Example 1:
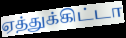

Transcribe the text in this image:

ஏத்துக்கிட்டா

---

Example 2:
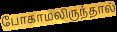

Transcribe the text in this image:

போகாமலிருந்தால்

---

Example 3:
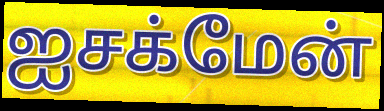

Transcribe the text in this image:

ஐசக்மேன்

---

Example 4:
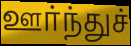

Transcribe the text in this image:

ஊர்ந்துச்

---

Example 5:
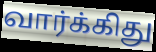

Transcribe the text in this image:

வார்க்கிது